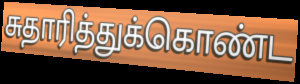
சுதாரித்துக்கொண்ட